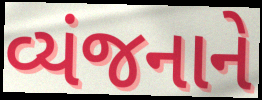
વ્યંજનાને